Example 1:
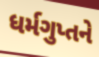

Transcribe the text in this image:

ધર્મગુપ્તને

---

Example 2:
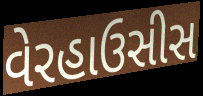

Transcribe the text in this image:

વેરહાઉસીસ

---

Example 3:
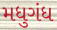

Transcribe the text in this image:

મધુગંધ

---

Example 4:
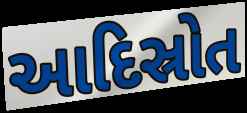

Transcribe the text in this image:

આદિસ્રોત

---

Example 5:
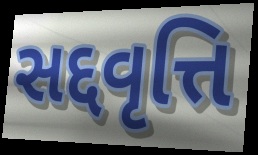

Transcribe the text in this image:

સદ્દવૃત્તિ